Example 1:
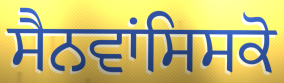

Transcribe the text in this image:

ਸੈਨਵਾਂਸਿਸਕੋ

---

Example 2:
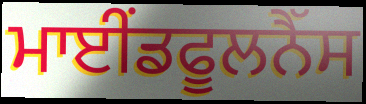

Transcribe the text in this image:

ਮਾਈਂਡਫੂਲਨੈੱਸ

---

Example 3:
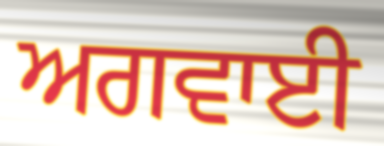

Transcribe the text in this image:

ਅਗਵਾਈ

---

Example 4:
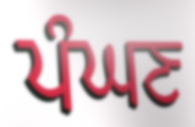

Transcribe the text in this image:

ਪੰਘਣ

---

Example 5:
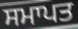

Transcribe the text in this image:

ਸਮਾਪਤ